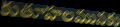
కుతూహలమునకు